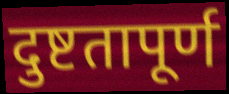
दुष्टतापूर्ण